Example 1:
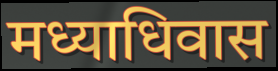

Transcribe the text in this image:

मध्याधिवास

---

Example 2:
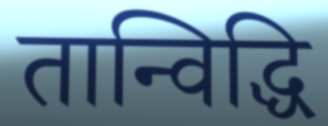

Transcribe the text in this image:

तान्विद्धि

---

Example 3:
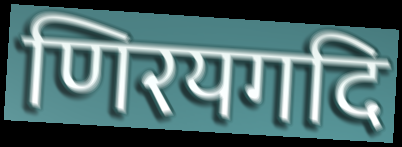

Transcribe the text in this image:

णिरयगदि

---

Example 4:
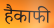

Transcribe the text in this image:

हैकाफी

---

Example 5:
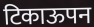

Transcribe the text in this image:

टिकाऊपन